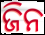
ଜିନ